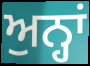
ਅੁਨ੍ਹਾਂ